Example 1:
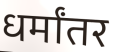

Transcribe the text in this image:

धर्मांतर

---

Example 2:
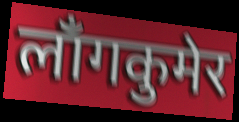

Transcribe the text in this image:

लाँगकुमेर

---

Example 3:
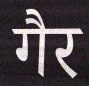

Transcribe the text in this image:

गैर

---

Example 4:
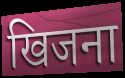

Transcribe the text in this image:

खिजना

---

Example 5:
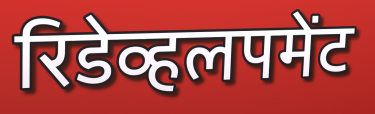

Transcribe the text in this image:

रिडेव्हलपमेंट